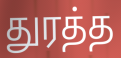
துரத்த